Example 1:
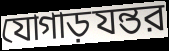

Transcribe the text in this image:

যোগাড়যন্তর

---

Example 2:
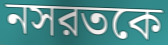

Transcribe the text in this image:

নসরতকে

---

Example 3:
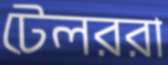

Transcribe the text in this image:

টেলররা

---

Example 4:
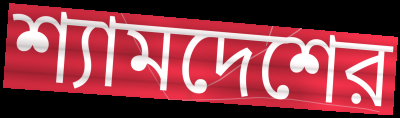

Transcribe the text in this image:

শ্যামদেশের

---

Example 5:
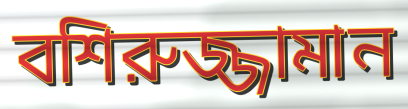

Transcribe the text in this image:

বশিরুজ্জামান